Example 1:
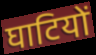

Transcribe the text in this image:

घाटियों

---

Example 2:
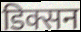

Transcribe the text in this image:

डिक्सन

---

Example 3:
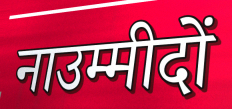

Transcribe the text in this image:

नाउम्मीदों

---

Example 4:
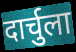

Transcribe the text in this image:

दार्चुला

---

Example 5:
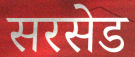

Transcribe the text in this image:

सरसेड